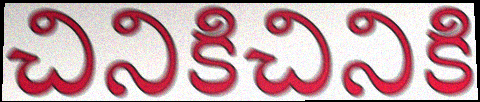
చినికిచినికి